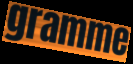
gramme